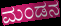
ಮಂಡನ